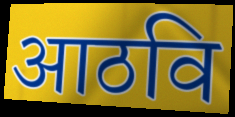
आठवि